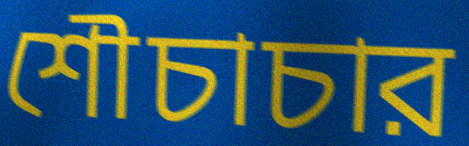
শৌচাচার